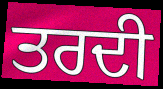
ਤਰਦੀ